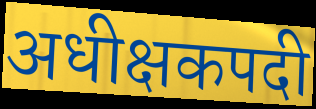
अधीक्षकपदी